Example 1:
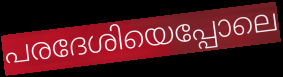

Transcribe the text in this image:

പരദേശിയെപ്പോലെ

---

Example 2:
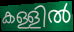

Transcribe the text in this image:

കള്ളിൽ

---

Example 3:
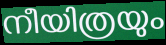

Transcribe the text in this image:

നീയിത്രയും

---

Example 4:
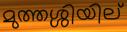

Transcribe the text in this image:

മുത്തശ്ശിയില്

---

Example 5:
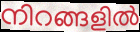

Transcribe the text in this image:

നിറങ്ങളിൽ